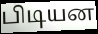
பிடியன